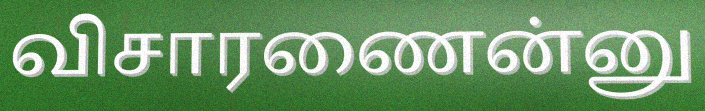
விசாரணைன்னு